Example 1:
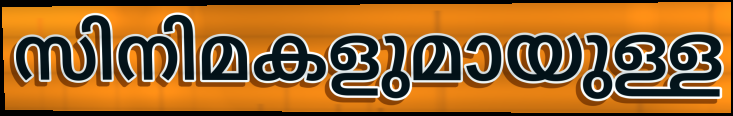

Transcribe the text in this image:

സിനിമകളുമായുള്ള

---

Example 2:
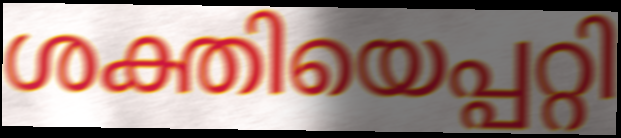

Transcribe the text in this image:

ശക്തിയെപ്പറ്റി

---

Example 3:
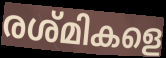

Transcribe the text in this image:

രശ്മികളെ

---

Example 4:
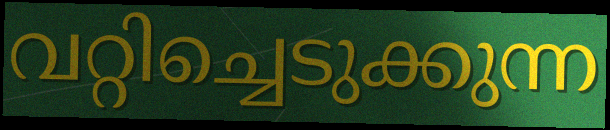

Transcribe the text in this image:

വറ്റിച്ചെടുക്കുന്ന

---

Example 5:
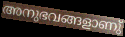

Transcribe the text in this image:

അനുഭവങ്ങളാണു്